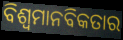
ବିଶ୍ଵମାନବିକତାର